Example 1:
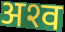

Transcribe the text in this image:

अश्व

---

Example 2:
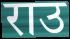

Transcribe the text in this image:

राउ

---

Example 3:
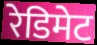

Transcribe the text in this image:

रेडिमेट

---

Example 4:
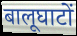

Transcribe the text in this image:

बालूघाटों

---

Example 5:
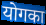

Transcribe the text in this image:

योगका